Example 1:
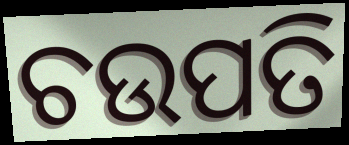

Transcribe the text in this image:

ଚଉପତି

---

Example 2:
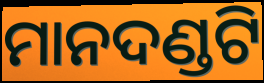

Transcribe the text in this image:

ମାନଦଣ୍ଡଟି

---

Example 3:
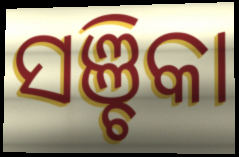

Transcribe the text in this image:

ସଞ୍ଚିକା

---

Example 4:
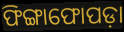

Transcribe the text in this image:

ଫିଙ୍ଗାଫୋପଡ଼ା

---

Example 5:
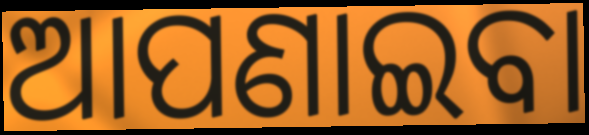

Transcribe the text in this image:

ଆପଣାଇବା